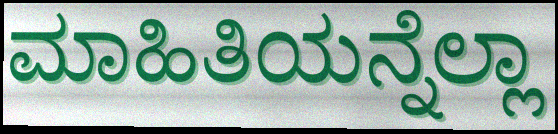
ಮಾಹಿತಿಯನ್ನೆಲ್ಲಾ